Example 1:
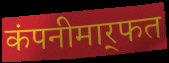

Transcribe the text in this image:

कंपनीमार्फत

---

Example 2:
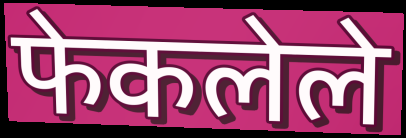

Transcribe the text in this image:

फेकलेले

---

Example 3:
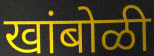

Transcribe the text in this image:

खांबोळी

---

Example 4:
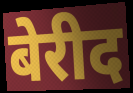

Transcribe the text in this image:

बेरीद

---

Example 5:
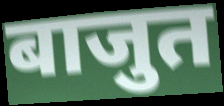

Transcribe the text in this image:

बाजुत